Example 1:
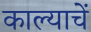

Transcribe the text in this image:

काल्याचें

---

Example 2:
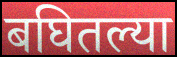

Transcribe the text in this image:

बघितल्या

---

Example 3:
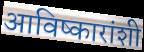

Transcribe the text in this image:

आविष्कारांशी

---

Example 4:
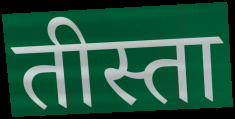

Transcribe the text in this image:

तीस्ता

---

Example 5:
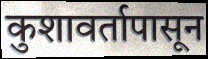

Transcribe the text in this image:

कुशावर्तापासून